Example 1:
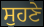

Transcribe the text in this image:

ਸੁਹਣੇ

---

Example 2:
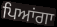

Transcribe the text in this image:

ਪਿਆਂਗਾ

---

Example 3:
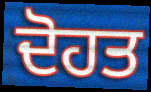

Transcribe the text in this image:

ਦੋਹਤ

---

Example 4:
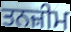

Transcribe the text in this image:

ਤਨਜ਼ੀਮ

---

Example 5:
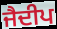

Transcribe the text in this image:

ਜੈਦੀਪ